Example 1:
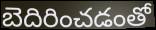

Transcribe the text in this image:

బెదిరించడంతో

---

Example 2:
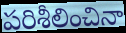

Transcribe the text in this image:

పరిశీలించినా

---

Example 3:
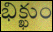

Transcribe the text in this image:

భిక్ఖుం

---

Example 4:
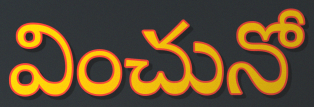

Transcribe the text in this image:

వించునో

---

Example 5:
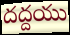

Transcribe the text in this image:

దద్దయు